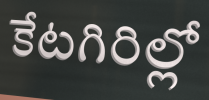
కేటగిరిల్లో